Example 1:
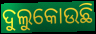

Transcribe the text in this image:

ଦୁଲୁକୋଉଛି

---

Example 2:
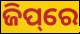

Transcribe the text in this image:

ଜିପ୍‌ରେ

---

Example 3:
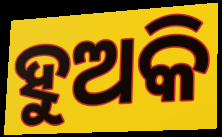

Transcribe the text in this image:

ହୁଅକି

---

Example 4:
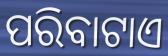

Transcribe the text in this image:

ପରିବାଟାଏ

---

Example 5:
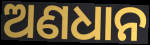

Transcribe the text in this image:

ଅଣଧାନ